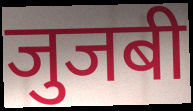
जुजबी